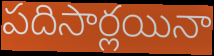
పదిసార్లయినా